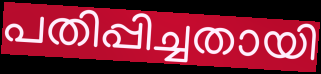
പതിപ്പിച്ചതായി